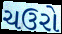
ચઉરો